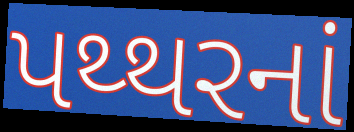
પથ્થરનાં